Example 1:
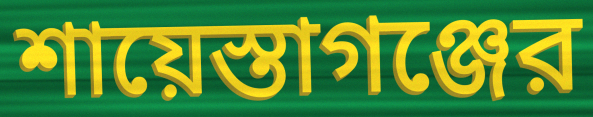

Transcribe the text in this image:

শায়েস্তাগঞ্জের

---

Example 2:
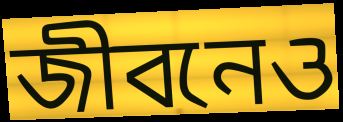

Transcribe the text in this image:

জীবনেও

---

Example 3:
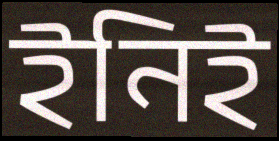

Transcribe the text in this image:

ইনিই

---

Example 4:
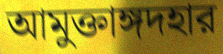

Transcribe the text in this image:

আমুক্তাঙ্গদহার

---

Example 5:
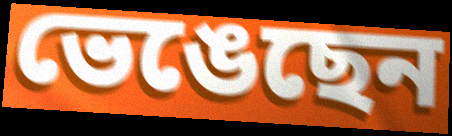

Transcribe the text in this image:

ভেঙেছেন